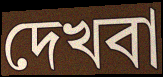
দেখবা